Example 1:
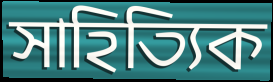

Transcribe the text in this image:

সাহিত্যিক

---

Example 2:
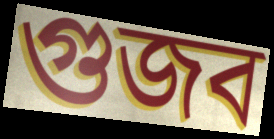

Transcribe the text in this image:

গুজব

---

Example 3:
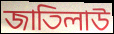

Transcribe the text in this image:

জাতিলাউ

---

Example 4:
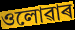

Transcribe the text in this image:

ওলোৱাৰ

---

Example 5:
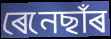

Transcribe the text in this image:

ৰেনেছাঁৰ